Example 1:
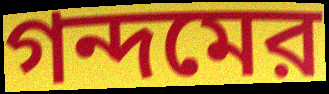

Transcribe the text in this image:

গন্দমের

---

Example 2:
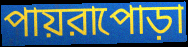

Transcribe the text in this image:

পায়রাপোড়া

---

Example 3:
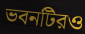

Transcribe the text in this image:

ভবনটিরও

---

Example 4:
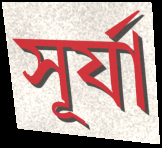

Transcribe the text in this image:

সূর্যা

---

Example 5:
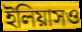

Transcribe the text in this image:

ইলিয়াসও